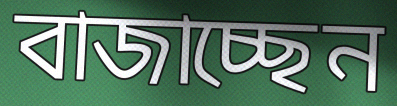
বাজাচ্ছেন